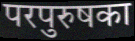
परपुरुषका